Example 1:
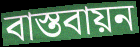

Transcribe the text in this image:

বাস্তবায়ন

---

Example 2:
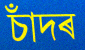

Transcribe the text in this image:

চাঁদৰ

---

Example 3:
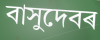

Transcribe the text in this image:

বাসুদেবৰ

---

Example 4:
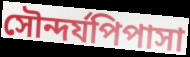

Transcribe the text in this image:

সৌন্দৰ্যপিপাসা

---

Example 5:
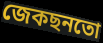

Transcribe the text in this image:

জেকছনতো